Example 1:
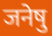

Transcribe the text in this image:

जनेषु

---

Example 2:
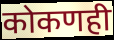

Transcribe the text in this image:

कोकणही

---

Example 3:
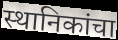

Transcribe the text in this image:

स्थानिकांचा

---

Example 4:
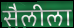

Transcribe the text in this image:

सैलीला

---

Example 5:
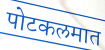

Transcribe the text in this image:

पोटकलमात